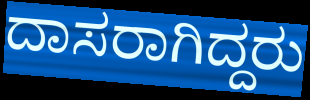
ದಾಸರಾಗಿದ್ದರು